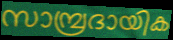
സാമ്പ്രദായിക